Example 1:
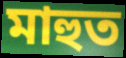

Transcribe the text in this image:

মাহুত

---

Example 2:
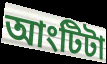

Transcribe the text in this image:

আংটিটা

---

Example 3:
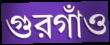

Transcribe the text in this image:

গুরগাঁও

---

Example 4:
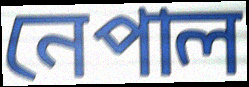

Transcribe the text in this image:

নেপাল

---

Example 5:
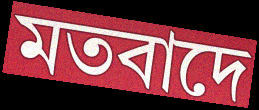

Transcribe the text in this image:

মতবাদে